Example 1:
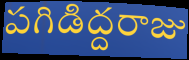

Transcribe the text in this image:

పగిడిద్దరాజు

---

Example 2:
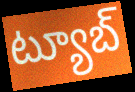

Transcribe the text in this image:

ట్యూబ్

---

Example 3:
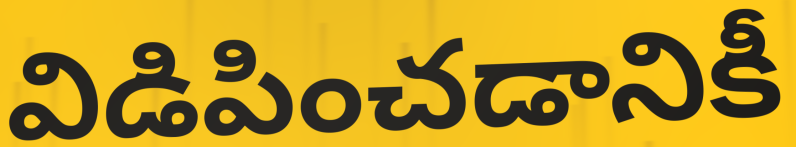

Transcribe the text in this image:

విడిపించడానికీ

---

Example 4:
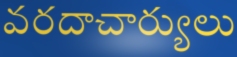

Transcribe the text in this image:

వరదాచార్యులు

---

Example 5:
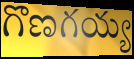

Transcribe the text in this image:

గొణగయ్య